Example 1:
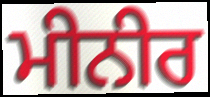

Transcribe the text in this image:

ਮੀਨੀਰ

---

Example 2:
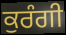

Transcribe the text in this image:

ਕੁਰੰਗੀ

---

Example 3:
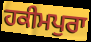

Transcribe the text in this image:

ਹਕੀਮਪੁਰਾ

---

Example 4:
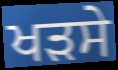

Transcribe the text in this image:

ਖੜਸੇ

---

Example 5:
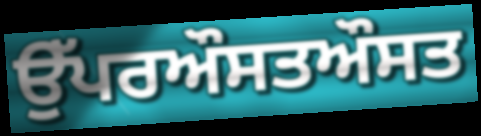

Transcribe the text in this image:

ਉੱਪਰਔਸਤਔਸਤ